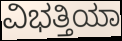
ವಿಭತ್ತಿಯಾ